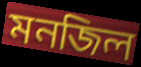
মনজিল